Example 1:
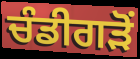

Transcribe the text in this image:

ਚੰਡੀਗੜੋਂ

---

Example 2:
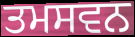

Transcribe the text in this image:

ਤਮਸਵਨ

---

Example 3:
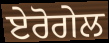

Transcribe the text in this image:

ਏਰੋਗੇਲ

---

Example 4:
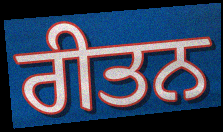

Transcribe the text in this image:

ਰੀਤਨ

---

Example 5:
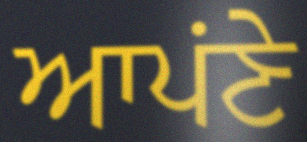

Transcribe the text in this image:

ਆਪਂਣੇ